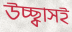
উচ্ছ্বাসই